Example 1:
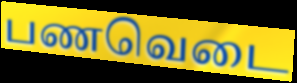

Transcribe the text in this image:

பணவெடை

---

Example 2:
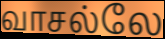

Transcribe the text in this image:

வாசல்லே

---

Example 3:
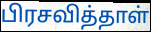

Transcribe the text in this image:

பிரசவித்தாள்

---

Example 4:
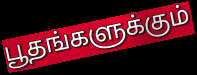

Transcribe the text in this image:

பூதங்களுக்கும்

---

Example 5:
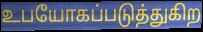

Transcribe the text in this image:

உபயோகப்படுத்துகிற